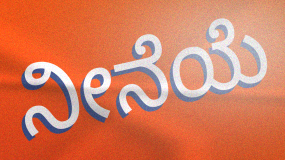
ನೀನೆಯೆ